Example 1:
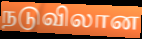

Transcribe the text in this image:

நடுவிலான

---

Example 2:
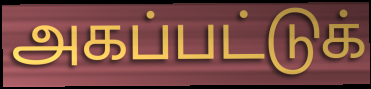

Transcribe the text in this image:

அகப்பட்டுக்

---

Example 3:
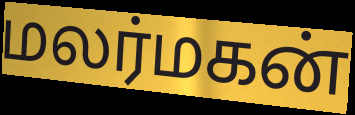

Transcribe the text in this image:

மலர்மகன்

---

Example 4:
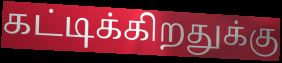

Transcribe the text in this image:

கட்டிக்கிறதுக்கு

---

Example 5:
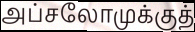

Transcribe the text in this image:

அப்சலோமுக்குத்